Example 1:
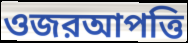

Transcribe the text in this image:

ওজরআপত্তি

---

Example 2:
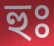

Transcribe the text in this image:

হুঃ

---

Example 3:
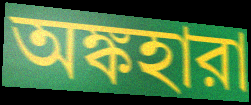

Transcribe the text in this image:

অঙ্কহারা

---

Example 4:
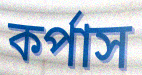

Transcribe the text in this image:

কর্পাস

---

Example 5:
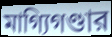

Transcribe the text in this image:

মাগ্যিগণ্ডার